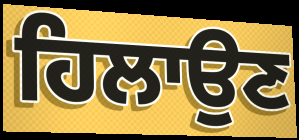
ਹਿਲਾਉਣ